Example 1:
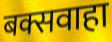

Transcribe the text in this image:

बक्सवाहा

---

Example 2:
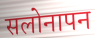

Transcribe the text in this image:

सलोनापन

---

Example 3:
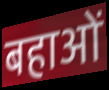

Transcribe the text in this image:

बहाओं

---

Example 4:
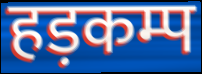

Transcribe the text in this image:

हड़कम्‍प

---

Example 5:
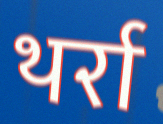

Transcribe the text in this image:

थर्रा